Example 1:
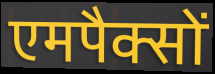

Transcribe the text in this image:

एमपैक्सों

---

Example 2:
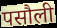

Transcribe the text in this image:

पसौली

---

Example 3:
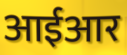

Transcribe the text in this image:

आईआर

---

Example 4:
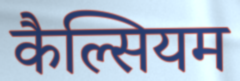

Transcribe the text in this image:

कैल्सियम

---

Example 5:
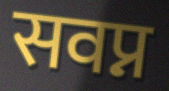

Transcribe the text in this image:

सवप्न